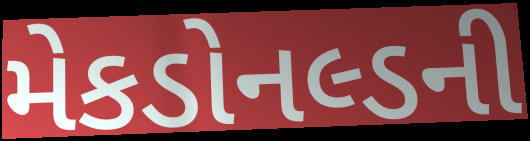
મેકડોનલ્ડની